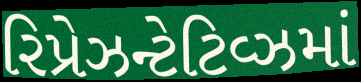
રિપ્રેઝન્ટેટિવ્ઝમાં